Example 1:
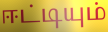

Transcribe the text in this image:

ஈட்டியும்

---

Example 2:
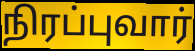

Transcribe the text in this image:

நிரப்புவார்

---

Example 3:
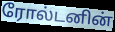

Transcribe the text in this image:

ரோல்டனின்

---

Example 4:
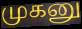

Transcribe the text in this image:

முகனு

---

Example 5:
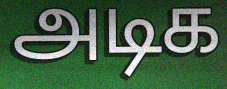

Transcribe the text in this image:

அடிக